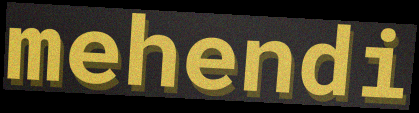
mehendi